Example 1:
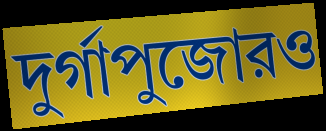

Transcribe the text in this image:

দুর্গাপুজোরও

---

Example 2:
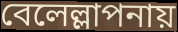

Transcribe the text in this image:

বেলেল্লাপনায়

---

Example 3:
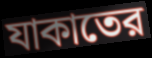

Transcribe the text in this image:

যাকাতের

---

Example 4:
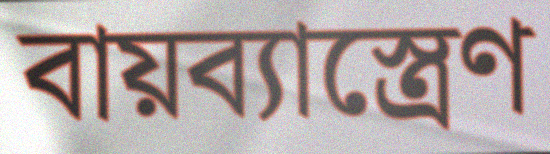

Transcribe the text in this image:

বায়ব্যাস্ত্রেণ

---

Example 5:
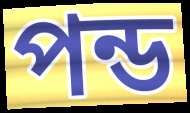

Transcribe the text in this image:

পন্ড